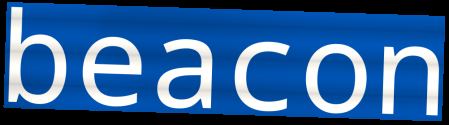
beacon